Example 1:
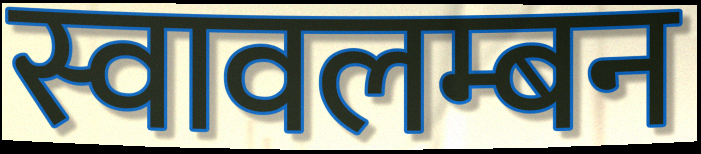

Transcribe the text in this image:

स्वावलम्बन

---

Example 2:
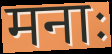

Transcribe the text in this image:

मनाः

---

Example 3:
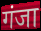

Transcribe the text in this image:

गंजा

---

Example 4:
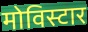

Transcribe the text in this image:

मोविस्टार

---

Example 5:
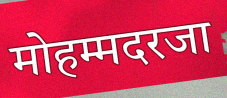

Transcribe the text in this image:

मोहम्मदरजा